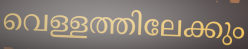
വെള്ളത്തിലേക്കും